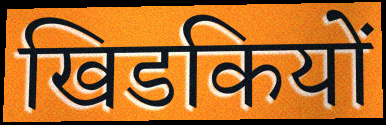
खिडकियों